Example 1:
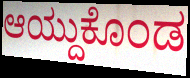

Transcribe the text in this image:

ಆಯ್ದುಕೊಂಡ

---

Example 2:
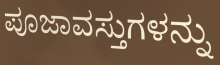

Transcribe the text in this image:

ಪೂಜಾವಸ್ತುಗಳನ್ನು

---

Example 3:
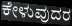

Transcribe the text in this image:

ಕೇಳುವುದರ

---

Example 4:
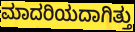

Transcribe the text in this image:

ಮಾದರಿಯದಾಗಿತ್ತು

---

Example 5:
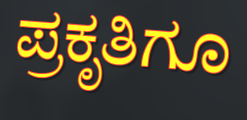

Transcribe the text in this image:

ಪ್ರಕೃತಿಗೂ